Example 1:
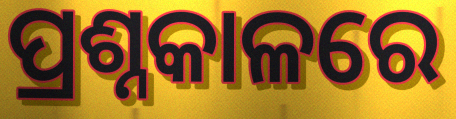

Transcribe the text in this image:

ପ୍ରଶ୍ନକାଳରେ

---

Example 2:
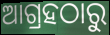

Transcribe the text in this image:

ଆଗ୍ରହଠାରୁ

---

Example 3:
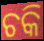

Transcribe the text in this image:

ଚକି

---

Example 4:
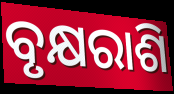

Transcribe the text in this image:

ବୃକ୍ଷରାଶି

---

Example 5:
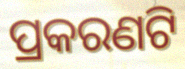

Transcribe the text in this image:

ପ୍ରକରଣଟି